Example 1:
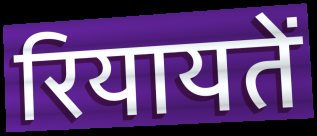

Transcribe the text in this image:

रियायतें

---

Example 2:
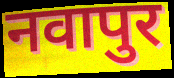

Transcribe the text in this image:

नवापुर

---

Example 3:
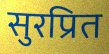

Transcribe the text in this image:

सुरप्रित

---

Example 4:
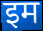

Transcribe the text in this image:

इम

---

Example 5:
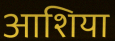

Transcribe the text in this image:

आशिया